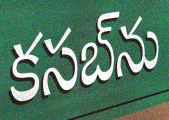
కసబ్‌ను